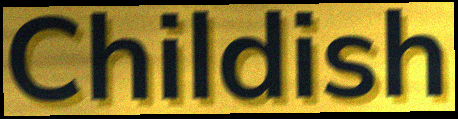
Childish